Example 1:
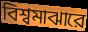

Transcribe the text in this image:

বিশ্বমাঝারে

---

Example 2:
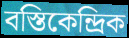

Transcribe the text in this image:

বস্তিকেন্দ্রিক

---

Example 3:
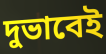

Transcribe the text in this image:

দুভাবেই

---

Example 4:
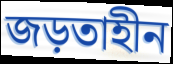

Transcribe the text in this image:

জড়তাহীন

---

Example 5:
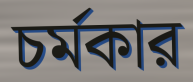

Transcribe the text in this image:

চর্মকার